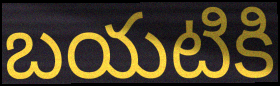
బయటికి